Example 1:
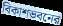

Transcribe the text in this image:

বিকাশভবনের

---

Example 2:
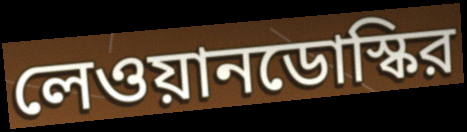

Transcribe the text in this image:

লেওয়ানডোস্কির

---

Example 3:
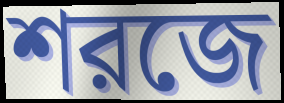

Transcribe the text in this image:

শরজে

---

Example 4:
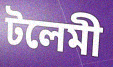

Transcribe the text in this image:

টলেমী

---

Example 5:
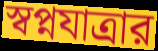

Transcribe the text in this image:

স্বপ্নযাত্রার